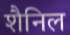
शैनिल